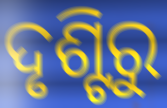
ଦୃଶ୍ଟିରୁ